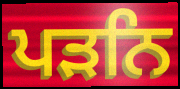
ਪੜਨਿ